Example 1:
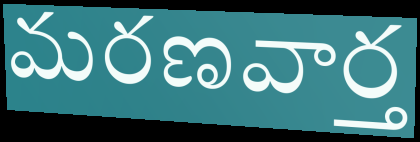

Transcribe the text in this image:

మరణవార్త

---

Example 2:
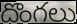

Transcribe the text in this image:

దొంగలు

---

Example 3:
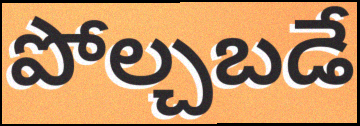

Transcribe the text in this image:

పోల్చబడే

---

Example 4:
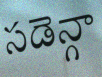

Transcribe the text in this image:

సడెన్గా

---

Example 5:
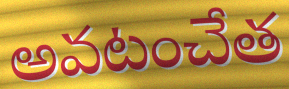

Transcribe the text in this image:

అవటంచేత